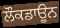
ਲੌਕਡਾਊਨ